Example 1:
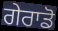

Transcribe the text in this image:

ਗੇਰਾਡੋ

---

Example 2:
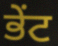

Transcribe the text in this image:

ਭੇਂਟ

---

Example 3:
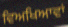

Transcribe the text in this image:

ਵਿਅਖਿਆਵਾਂ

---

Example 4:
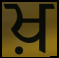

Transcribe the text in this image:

ਖ਼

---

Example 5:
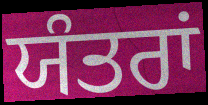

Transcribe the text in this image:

ਯੰਤਰਾਂ